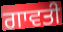
ਗਾਵਤੀ